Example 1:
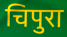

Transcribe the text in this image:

चिपुरा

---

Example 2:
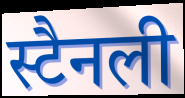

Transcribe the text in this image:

स्टैनली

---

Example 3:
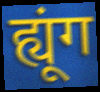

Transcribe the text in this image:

ह्यूंग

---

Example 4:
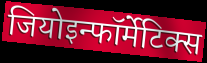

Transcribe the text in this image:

जियोइन्फॉर्मेटिक्स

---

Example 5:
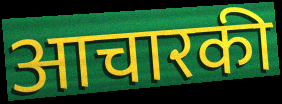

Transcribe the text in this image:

आचारकी